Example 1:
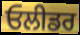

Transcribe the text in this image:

ਓਲੀਡਰ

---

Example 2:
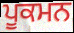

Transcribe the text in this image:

ਪੂਕਮਨ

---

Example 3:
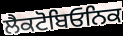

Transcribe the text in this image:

ਲੈਕਟੋਬਿਓਨਿਕ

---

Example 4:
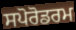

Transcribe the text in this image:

ਸਪੋਰੋਡਰਮ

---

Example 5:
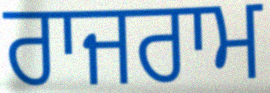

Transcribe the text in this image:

ਰਾਜਰਾਮ